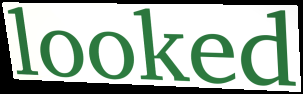
looked